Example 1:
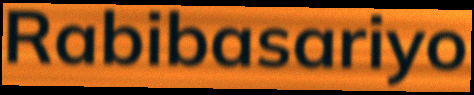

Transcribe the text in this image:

Rabibasariyo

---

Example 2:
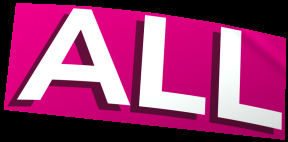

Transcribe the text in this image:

ALL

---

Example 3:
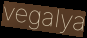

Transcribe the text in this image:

vegalya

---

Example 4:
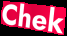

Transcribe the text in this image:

Chek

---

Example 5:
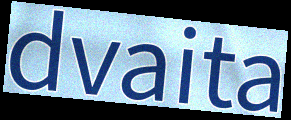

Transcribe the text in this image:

dvaita